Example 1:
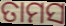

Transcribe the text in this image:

ତାମସ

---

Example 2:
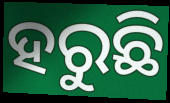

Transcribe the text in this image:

ହରୁଛି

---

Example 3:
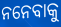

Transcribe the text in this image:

ନନେବାକୁ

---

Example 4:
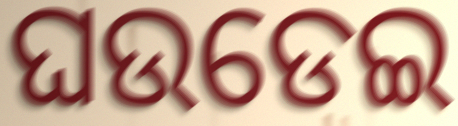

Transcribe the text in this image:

ଘଉଡେଇ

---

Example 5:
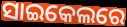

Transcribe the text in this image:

ସାଇକେଲରେ